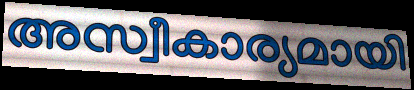
അസ്വീകാര്യമായി